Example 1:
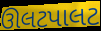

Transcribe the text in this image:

ઊલટપાલટ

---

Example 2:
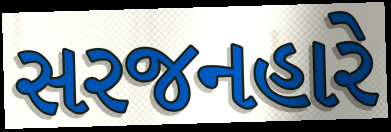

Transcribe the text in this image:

સરજનહારે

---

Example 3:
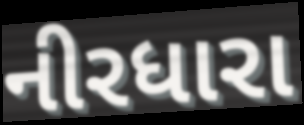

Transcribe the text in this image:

નીરધારા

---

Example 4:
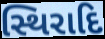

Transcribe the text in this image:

સ્થિરાદિ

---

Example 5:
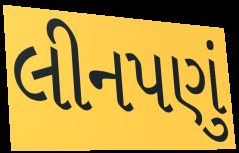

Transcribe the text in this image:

લીનપણું